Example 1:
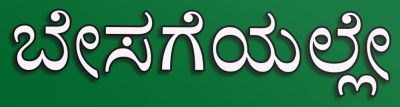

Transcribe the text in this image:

ಬೇಸಗೆಯಲ್ಲೇ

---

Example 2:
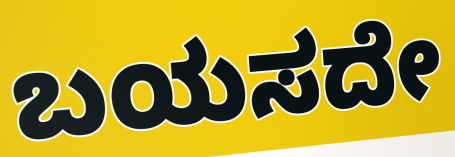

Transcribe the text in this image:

ಬಯಸದೇ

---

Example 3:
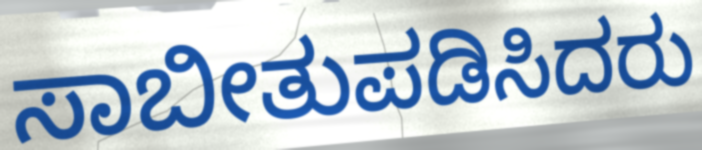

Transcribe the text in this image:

ಸಾಬೀತುಪಡಿಸಿದರು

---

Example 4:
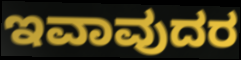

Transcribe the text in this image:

ಇವಾವುದರ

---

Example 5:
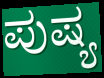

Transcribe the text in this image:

ಪುಷ್ಯ